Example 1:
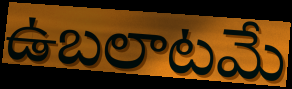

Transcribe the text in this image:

ఉబలాటమే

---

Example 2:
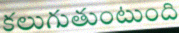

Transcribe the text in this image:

కలుగుతుంటుంది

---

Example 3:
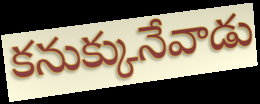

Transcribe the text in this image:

కనుక్కునేవాడు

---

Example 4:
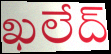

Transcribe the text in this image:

ఖలేద్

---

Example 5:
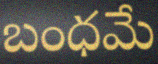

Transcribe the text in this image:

బంధమే